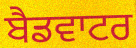
ਬੈਡਵਾਟਰ